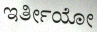
ಇರ್ತೀಯೋ